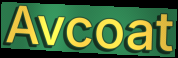
Avcoat